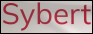
Sybert